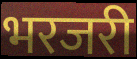
भरजरी